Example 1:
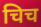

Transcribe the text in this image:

चिच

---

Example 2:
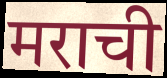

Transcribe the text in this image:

मराची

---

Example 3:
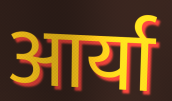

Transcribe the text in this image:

आर्या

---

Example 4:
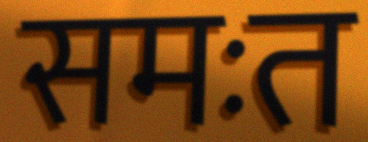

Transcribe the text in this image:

समःत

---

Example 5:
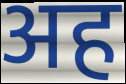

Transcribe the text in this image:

अह